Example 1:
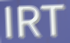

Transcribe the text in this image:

IRT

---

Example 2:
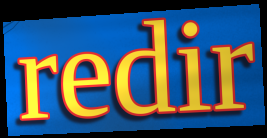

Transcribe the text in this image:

redir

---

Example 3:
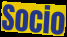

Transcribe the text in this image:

Socio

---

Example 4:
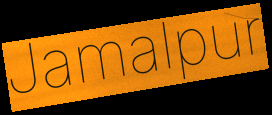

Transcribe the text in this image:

Jamalpur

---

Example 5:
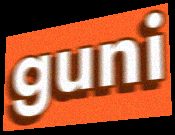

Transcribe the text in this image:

guni